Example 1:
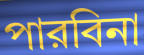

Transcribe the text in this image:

পারবিনা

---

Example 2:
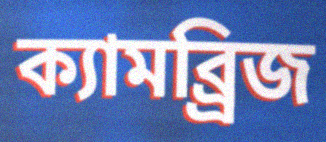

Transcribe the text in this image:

ক্যামব্র্রিজ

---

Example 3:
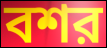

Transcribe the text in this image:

বশর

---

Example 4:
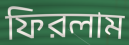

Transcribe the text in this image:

ফিরলাম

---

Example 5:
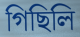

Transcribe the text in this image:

গিছিলি